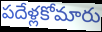
పదేళ్లకోమారు